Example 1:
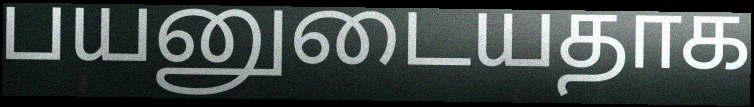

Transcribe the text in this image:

பயனுடையதாக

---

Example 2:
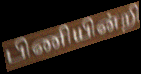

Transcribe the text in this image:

பிணியின்றி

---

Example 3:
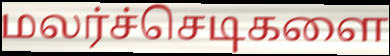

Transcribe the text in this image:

மலர்ச்செடிகளை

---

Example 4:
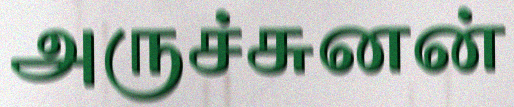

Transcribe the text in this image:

அருச்சுனன்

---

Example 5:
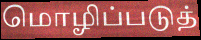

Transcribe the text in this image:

மொழிப்படுத்